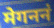
मेगननं